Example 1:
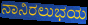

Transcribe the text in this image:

ನಾನಿರಲುಭಯ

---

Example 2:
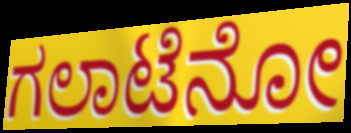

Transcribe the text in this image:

ಗಲಾಟೆನೋ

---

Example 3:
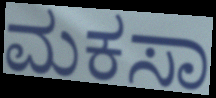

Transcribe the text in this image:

ಮಕಸಾ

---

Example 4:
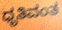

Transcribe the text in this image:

ಧೃತಿವಂತ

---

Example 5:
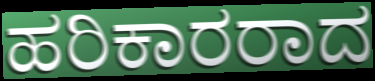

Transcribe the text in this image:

ಹರಿಕಾರರಾದ